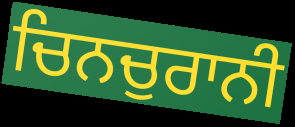
ਚਿਨਚੁਰਾਨੀ